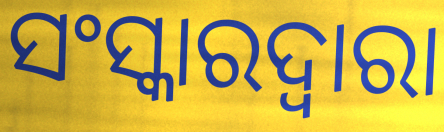
ସଂସ୍କାରଦ୍ୱାରା